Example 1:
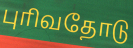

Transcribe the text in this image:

புரிவதோடு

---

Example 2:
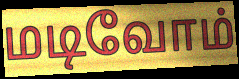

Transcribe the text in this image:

மடிவோம்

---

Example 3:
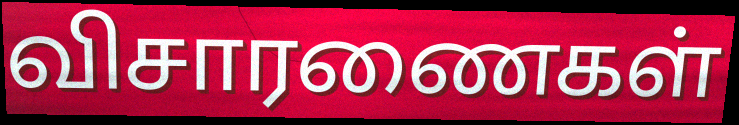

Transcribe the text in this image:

விசாரணைகள்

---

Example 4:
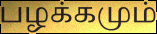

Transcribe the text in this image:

பழக்கமும்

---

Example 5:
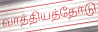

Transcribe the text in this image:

வாத்தியத்தோடு